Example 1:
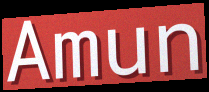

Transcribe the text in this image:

Amun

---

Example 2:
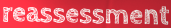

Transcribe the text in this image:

reassessment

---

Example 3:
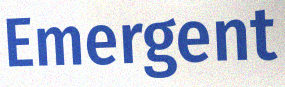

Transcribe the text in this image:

Emergent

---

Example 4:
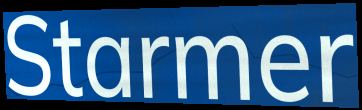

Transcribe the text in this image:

Starmer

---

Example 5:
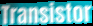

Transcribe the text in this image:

Transistor